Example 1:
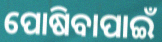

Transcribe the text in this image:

ପୋଷିବାପାଇଁ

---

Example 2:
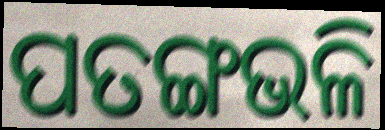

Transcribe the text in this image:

ପତଙ୍ଗଭଳି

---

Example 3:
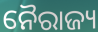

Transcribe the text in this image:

ନୈରାଜ୍ୟ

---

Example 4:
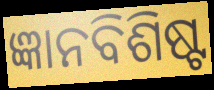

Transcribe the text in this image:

ଜ୍ଞାନବିଶିଷ୍ଟ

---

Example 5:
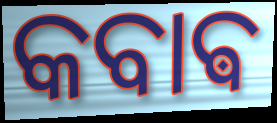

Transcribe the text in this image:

କବାଵ